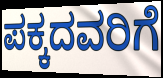
ಪಕ್ಕದವರಿಗೆ